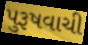
પુરૂષવાચી